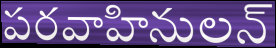
పరవాహినులన్